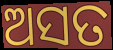
ଅସତ